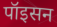
पॉइसन